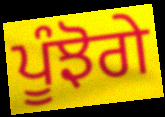
ਪੂੰਝੋਗੇ